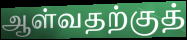
ஆள்வதற்குத்